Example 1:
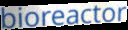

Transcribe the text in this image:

bioreactor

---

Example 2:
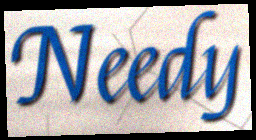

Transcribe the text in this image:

Needy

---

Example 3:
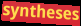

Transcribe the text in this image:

syntheses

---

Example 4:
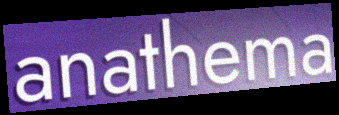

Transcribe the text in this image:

anathema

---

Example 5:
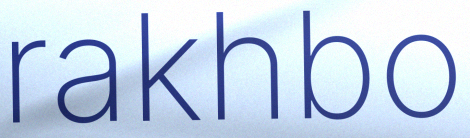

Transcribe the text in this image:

rakhbo